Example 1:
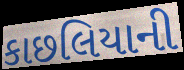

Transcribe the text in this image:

કાછલિયાની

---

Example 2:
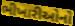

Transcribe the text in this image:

ભીખારીઓનો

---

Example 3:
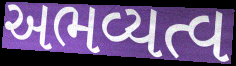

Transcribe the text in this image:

અભવ્યત્વ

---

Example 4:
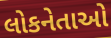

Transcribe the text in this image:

લોકનેતાઓ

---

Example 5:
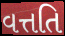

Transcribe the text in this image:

વત્તતિ